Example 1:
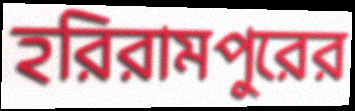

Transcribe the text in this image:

হরিরামপুরের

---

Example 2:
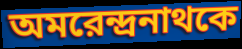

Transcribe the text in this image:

অমরেন্দ্রনাথকে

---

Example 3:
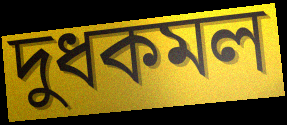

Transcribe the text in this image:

দুধকমল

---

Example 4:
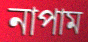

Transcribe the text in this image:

নাপাম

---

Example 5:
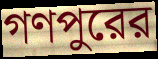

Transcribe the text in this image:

গণপুরের